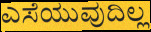
ಎಸೆಯುವುದಿಲ್ಲ